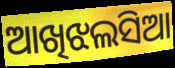
ଆଖିଝଲସିଆ